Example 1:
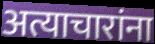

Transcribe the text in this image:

अत्याचारांना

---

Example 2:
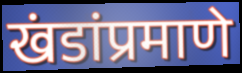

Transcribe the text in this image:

खंडांप्रमाणे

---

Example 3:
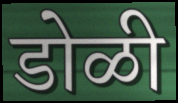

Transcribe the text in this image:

डोळी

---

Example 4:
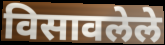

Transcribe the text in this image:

विसावलेले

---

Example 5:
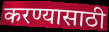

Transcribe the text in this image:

करण्‍यासाठी